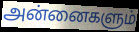
அன்னைகளும்